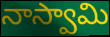
నాస్వామి